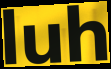
luh